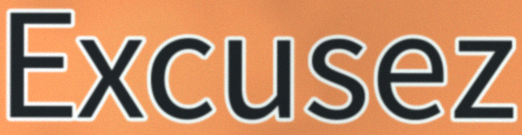
Excusez